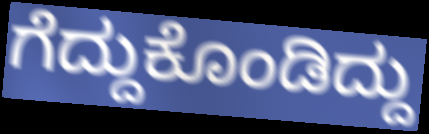
ಗೆದ್ದುಕೊಂಡಿದ್ದು